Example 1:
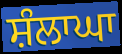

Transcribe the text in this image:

ਸ਼ੰਲਾਘਾ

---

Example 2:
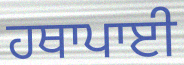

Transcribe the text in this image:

ਹਥਾਪਾਈ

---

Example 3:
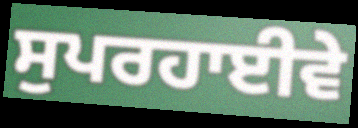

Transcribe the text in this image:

ਸੁਪਰਹਾਈਵੇ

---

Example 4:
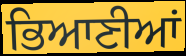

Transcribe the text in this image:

ਭਿਆਣੀਆਂ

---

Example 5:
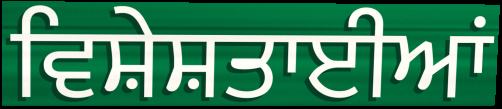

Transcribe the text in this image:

ਵਿਸ਼ੇਸ਼ਤਾਈਆਂ